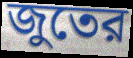
জুতের